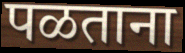
पळताना